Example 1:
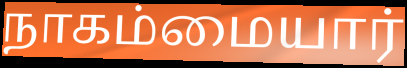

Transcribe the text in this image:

நாகம்மையார்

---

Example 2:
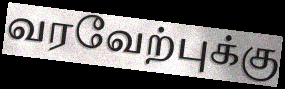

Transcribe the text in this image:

வரவேற்புக்கு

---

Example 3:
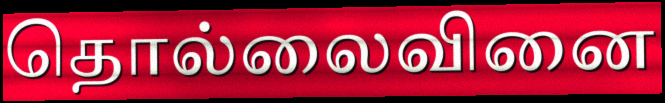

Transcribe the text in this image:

தொல்லைவினை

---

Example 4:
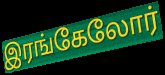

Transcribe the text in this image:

இரங்கேலோர்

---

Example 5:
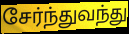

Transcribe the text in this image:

சேர்ந்துவந்து